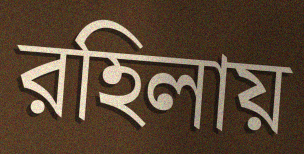
রহিলায়